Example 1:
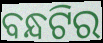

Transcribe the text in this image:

ବନ୍ଧଟିର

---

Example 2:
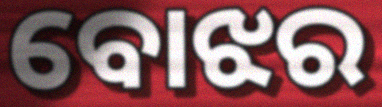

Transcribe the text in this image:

ବୋଝର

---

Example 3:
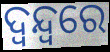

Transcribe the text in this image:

ଦ୍ୱନ୍ଦ୍ବରେ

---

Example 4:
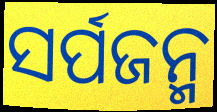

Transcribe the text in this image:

ସର୍ପଜନ୍ମ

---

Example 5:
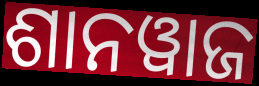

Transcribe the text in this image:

ଶାନୱାଜ